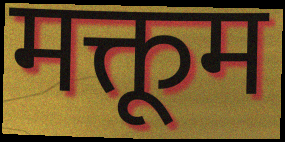
मक्तूम